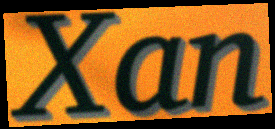
Xan